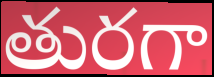
తురగా